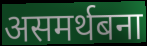
असमर्थबना